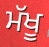
ਮੱਖੂ